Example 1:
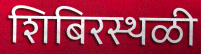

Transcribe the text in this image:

शिबिरस्थळी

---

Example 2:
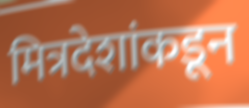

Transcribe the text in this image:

मित्रदेशांकडून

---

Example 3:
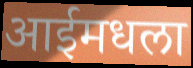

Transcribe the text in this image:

आईमधला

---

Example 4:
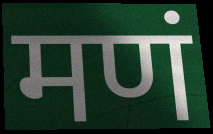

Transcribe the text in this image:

मणं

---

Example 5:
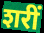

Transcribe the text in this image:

शरीं